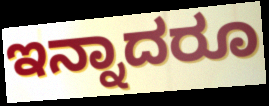
ಇನ್ನಾದರೂ